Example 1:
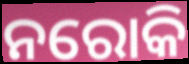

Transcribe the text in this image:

ନରୋକି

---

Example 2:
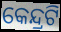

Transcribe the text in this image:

କେନ୍ଦ୍ରଟି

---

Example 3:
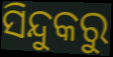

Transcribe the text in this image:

ସିନ୍ଦୁକରୁ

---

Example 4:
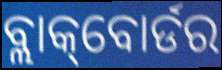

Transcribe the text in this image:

ବ୍ଲାକ୍‌ବୋର୍ଡର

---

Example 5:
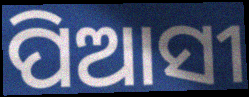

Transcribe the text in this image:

ପିଆସୀ